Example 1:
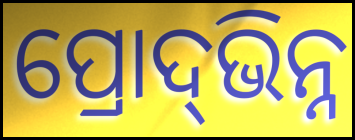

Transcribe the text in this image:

ପ୍ରୋଦ୍‌ଭିନ୍ନ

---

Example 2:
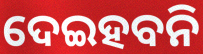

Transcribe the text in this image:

ଦେଇହବନି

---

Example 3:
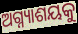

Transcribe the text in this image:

ଅଗ୍ନ୍ୟାଶୟକୁ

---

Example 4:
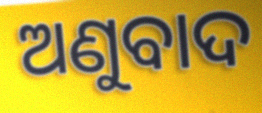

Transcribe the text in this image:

ଅଣୁବାଦ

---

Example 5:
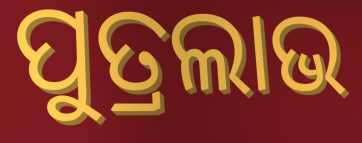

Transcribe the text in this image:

ପୁତ୍ରଲାଭ